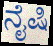
ನೈಷಿ